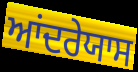
ਆਂਦਰੇਯਾਸ